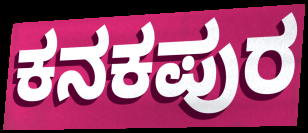
ಕನಕಪುರ